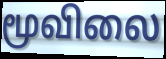
மூவிலை